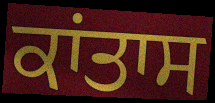
ਕਾਂਤਾਸ